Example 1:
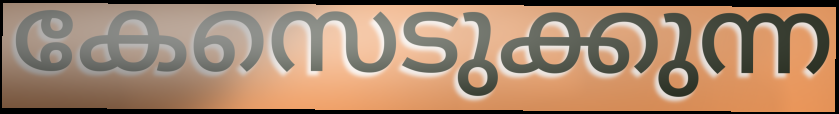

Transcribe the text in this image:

കേസെടുക്കുന്ന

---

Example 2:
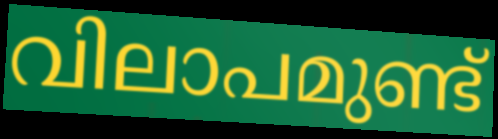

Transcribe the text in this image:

വിലാപമുണ്ട്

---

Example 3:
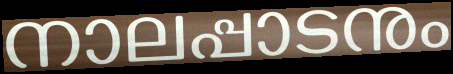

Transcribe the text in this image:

നാലപ്പാടനും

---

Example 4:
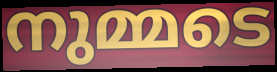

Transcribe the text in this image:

നുമ്മടെ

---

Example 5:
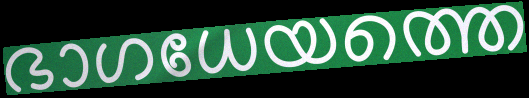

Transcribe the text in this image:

ഭാഗധേയത്തെ